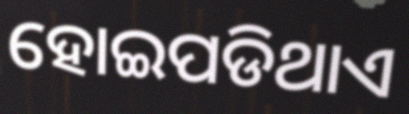
ହୋଇପଡିଥାଏ